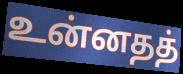
உன்னதத்